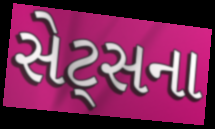
સેટ્સના